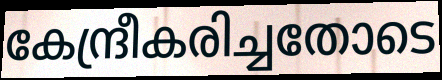
കേന്ദ്രീകരിച്ചതോടെ